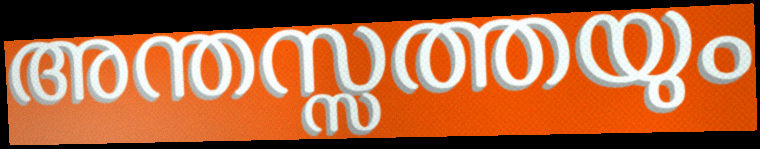
അന്തസ്സത്തയും